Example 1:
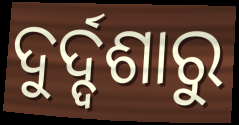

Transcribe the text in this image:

ଦୁର୍ଦ୍ଦଶାରୁ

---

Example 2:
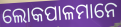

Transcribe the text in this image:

ଲୋକପାଳମାନେ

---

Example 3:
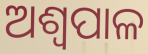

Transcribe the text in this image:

ଅଶ୍ୱପାଳ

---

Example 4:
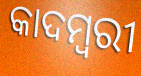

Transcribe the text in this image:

କାଦମ୍ୱରୀ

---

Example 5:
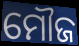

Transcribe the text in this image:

ମୌଜ